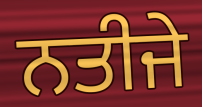
ਨਤੀਜੇ